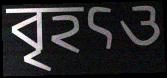
বৃহৎও